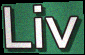
Liv